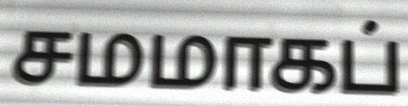
சமமாகப்